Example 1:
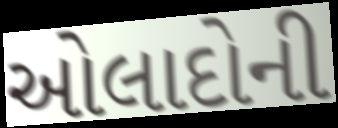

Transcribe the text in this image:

ઓલાદોની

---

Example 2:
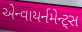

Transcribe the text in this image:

એન્વાયર્નમેન્ટ્સ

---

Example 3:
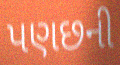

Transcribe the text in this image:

પણછની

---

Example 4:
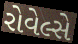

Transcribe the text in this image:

રોવેલ્સે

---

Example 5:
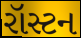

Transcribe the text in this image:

રૉસ્ટન